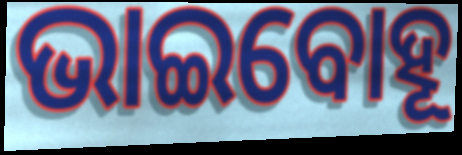
ଭାଇବୋହୂ